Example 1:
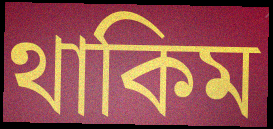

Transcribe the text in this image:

থাকিম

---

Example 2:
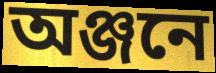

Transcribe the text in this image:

অঞ্জনে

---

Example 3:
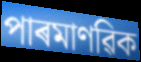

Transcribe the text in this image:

পাৰমাণৱিক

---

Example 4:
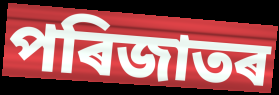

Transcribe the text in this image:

পৰিজাতৰ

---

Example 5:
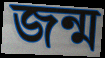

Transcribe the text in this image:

জন্ম